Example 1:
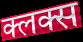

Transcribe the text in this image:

क्लक्स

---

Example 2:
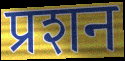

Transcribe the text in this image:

प्रशन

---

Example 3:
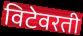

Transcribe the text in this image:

विटेवरती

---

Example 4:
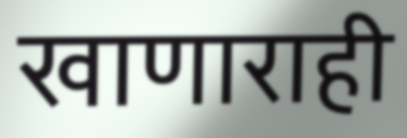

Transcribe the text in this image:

खाणाराही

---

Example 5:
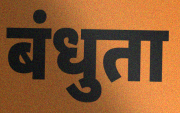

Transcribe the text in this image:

बंधुता